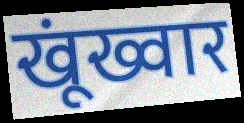
खूंख्वार